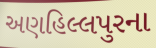
અણહિલ્લપુરના